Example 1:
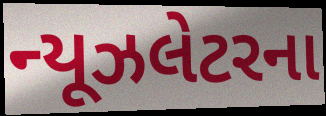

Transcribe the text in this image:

ન્યૂઝલેટરના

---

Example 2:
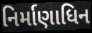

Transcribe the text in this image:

નિર્માણાધિન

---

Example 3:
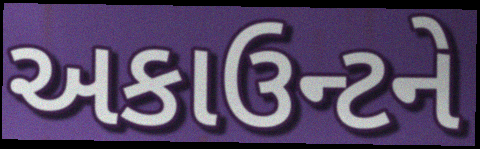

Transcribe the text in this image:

અકાઉન્ટને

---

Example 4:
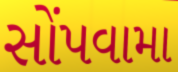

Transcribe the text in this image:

સોંપવામા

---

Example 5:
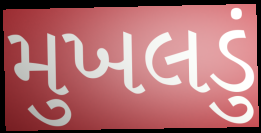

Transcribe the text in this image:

મુખલડું